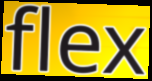
flex